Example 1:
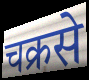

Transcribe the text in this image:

चक्रसे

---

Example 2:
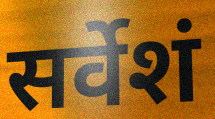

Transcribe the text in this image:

सर्वेशं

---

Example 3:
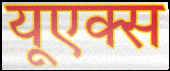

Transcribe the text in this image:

यूएक्स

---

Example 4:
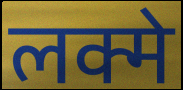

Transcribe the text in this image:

लक्मे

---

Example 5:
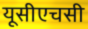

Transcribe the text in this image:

यूसीएचसी